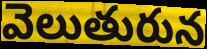
వెలుతురున